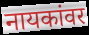
नायकांवर